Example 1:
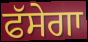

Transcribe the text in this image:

ਫੱਸੇਗਾ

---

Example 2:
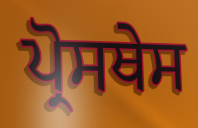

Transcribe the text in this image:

ਪ੍ਰੋਸਥੇਸ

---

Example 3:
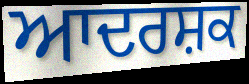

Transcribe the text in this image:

ਆਦਰਸ਼ਕ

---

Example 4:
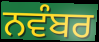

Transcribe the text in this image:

ਨਵੰਬਰ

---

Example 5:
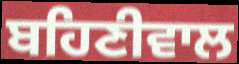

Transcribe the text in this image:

ਬਹਿਣੀਵਾਲ